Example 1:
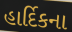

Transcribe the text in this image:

હાર્દિકના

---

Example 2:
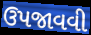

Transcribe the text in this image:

ઉપજાવવી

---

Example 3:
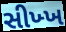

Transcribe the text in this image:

સીખ્ખ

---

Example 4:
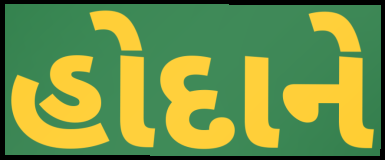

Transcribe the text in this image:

હોદાને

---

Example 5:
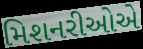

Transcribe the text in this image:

મિશનરીઓએ